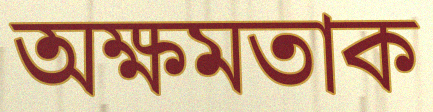
অক্ষমতাক